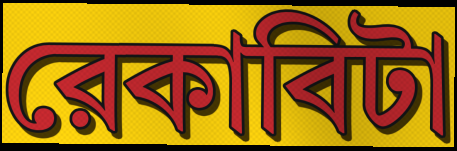
রেকাবিটা